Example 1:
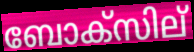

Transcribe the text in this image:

ബോക്സില്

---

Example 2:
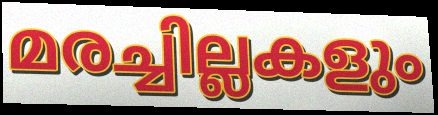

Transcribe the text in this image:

മരച്ചില്ലകളും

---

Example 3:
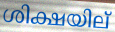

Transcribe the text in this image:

ശിക്ഷയില്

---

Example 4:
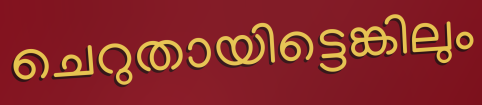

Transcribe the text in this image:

ചെറുതായിട്ടെങ്കിലും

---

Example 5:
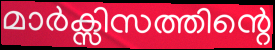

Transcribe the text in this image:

മാർക്സിസത്തിന്റെ